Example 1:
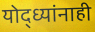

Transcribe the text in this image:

योद्ध्यांनाही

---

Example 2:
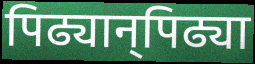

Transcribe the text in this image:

पिढ्यान्‌पिढ्या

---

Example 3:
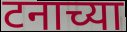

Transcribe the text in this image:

टनाच्या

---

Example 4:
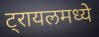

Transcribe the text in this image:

ट्रायलमध्ये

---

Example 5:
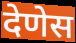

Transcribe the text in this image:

देणेस